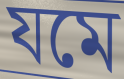
যমে